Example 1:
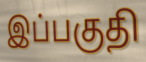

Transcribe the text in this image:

இப்பகுதி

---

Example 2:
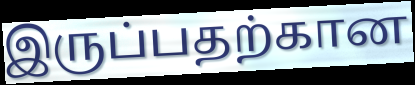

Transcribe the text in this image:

இருப்பதற்கான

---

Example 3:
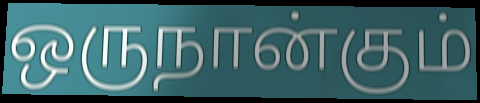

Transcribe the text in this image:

ஒருநான்கும்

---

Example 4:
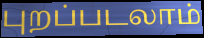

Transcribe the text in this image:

புறப்படலாம்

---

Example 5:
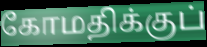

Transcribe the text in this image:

கோமதிக்குப்